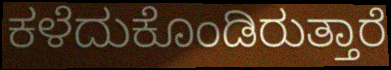
ಕಳೆದುಕೊಂಡಿರುತ್ತಾರೆ